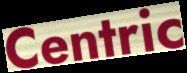
Centric